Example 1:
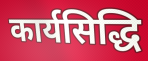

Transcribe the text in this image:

कार्यसिद्धि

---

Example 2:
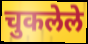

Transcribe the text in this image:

चुकलेले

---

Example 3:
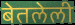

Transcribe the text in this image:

बेतलेली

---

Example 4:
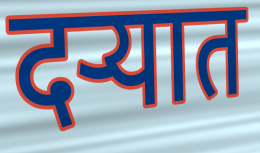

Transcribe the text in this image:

दऱ्यात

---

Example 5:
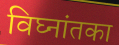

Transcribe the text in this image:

विघ्नांतका